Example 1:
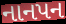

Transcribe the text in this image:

નાનપન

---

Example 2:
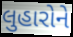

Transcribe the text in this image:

લુહારોને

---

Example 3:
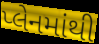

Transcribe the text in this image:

પ્લેનમાંથી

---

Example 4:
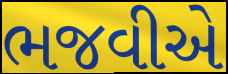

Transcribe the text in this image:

ભજવીએ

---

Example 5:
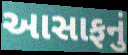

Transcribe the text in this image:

આસાફનું